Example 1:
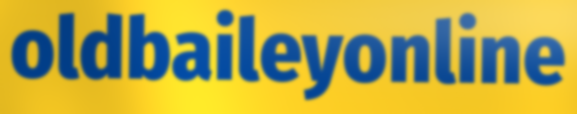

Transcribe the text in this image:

oldbaileyonline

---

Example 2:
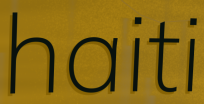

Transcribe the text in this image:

haiti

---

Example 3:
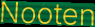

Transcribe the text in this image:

Nooten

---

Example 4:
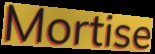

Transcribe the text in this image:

Mortise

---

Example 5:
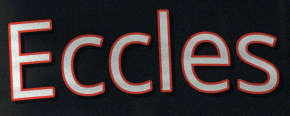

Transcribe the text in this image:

Eccles